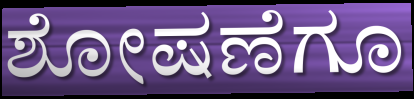
ಶೋಷಣೆಗೂ